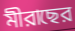
মীরাছের